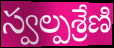
స్వల్పశ్రేణి